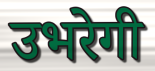
उभरेगी